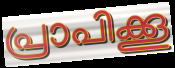
പ്രാപിക്കൂ